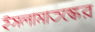
ইসলামাতঙ্কের